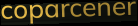
coparcener